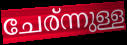
ചേര്ന്നുള്ള